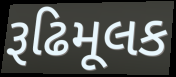
રૂઢિમૂલક